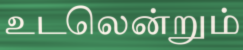
உடலென்றும்